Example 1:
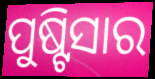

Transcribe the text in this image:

ପୁଷ୍ଟିସାର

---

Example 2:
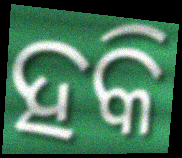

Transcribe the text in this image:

ହକି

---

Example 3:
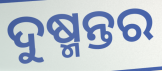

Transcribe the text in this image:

ଦୁଷ୍ମନ୍ତର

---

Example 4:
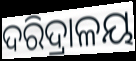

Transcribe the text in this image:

ଦରିଦ୍ରାଳୟ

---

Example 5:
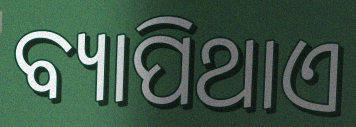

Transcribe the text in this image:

ବ୍ୟାପିଥାଏ